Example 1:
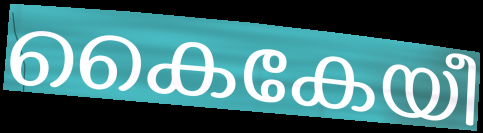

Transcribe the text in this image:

കൈകേയീ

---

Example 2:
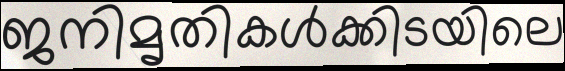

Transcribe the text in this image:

ജനിമൃതികൾക്കിടയിലെ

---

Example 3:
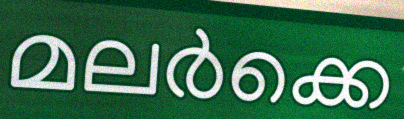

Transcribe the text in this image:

മലർക്കെ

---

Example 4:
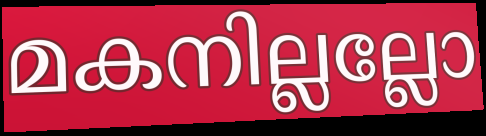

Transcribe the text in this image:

മകനില്ലല്ലോ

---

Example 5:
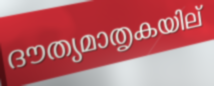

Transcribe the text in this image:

ദൗത്യമാതൃകയില്